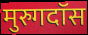
मुरुगदॉस